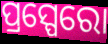
ପ୍ରସ୍ପେରୋ